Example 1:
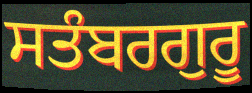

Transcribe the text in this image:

ਸਤੰਬਰਗੁਰੂ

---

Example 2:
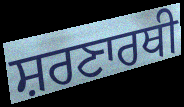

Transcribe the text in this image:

ਸ਼ਰਣਾਰਥੀ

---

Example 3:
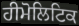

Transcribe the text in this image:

ਹੀਮੋਲਿਟਿਕ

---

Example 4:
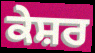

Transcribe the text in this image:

ਕੇਸ਼ਰ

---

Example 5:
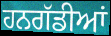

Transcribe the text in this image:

ਹਨਗੱਡੀਆਂ